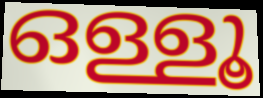
ഒള്ളൂ